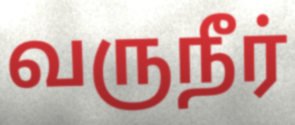
வருநீர்